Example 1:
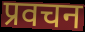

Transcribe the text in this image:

प्रवचन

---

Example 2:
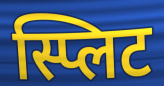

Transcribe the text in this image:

स्प्लिट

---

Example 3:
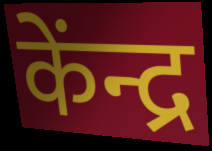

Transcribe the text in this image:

केंन्द्र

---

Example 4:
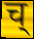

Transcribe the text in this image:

च्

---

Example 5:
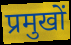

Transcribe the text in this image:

प्रमुखों